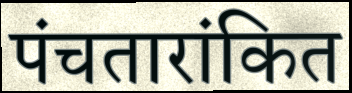
पंचतारांकित